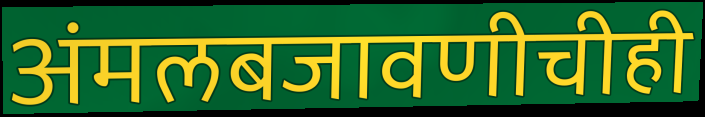
अंमलबजावणीचीही